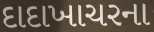
દાદાખાચરના